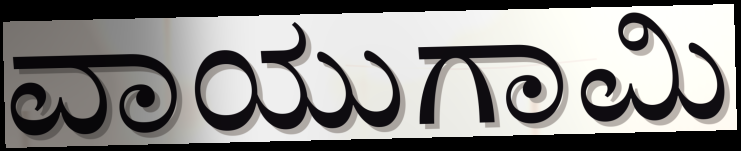
ವಾಯುಗಾಮಿ